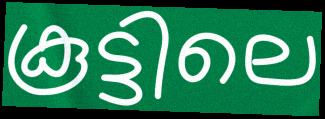
കൂട്ടിലെ